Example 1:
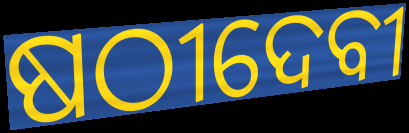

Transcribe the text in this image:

ଷଠୀଦେବୀ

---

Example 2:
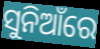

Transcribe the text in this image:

ସୁନିଆଁରେ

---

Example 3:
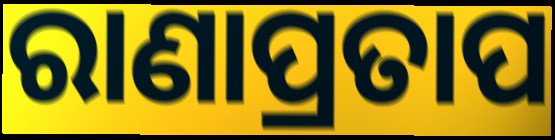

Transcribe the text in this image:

ରାଣାପ୍ରତାପ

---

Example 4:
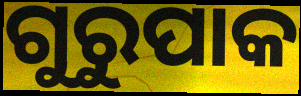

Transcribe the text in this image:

ଗୁରୁପାକ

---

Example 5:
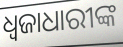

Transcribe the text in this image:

ଧ୍ୱଜାଧାରୀଙ୍କ